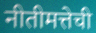
नीतीमत्तेची